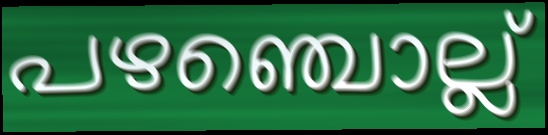
പഴഞ്ചൊല്ല്